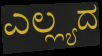
ಎಲ್ಲ್ಯದ